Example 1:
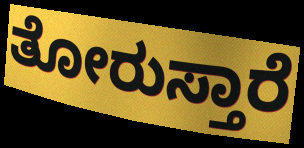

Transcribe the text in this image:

ತೋರುಸ್ತಾರೆ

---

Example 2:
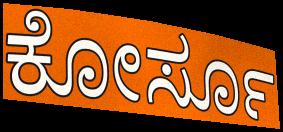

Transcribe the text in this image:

ಕೋರ್ಸೂ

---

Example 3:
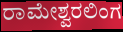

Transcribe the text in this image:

ರಾಮೇಶ್ವರಲಿಂಗ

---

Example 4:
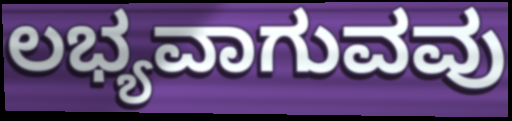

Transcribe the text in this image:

ಲಭ್ಯವಾಗುವವು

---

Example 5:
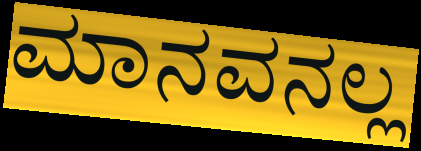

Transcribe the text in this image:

ಮಾನವನಲ್ಲ